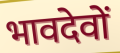
भावदेवों